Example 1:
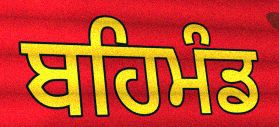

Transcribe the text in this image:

ਬਹਿਮੰਡ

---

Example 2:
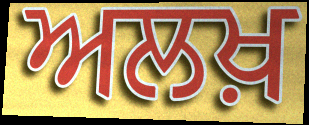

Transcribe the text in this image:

ਅਲਖ਼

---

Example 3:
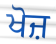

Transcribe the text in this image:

ਖੋਜ਼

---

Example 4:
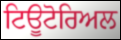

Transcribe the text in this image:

ਟਿਊਟੋਰਿਅਲ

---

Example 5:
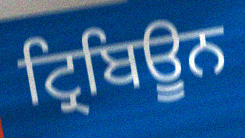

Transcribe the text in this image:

ਟ੍ਰਿਬਿਉੂਨ